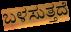
ಬಳಸುತ್ತದೆ